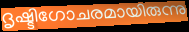
ദൃഷ്ടിഗോചരമായിരുന്നു